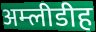
अम्लीडीह